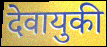
देवायुकी